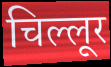
चिल्लूर